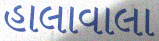
હાલાવાલા